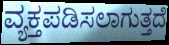
ವ್ಯಕ್ತಪಡಿಸಲಾಗುತ್ತದೆ